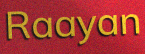
Raayan